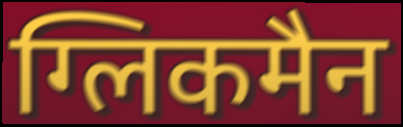
ग्लिकमैन